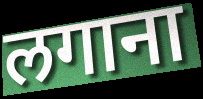
लगाना